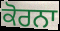
ਕੋਰਨਾ